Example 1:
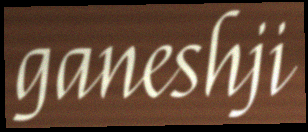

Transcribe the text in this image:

ganeshji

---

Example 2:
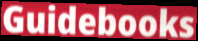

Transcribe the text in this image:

Guidebooks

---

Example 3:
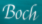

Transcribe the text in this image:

Boch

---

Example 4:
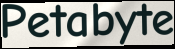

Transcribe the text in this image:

Petabyte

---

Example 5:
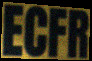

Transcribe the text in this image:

ECFR